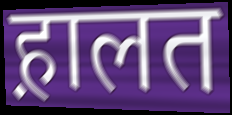
ह़ालत